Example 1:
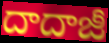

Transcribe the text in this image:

దాదాజీ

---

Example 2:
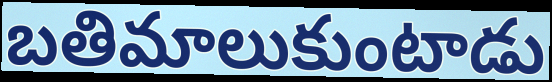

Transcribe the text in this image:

బతిమాలుకుంటాడు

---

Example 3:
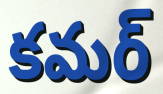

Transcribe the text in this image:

కమర్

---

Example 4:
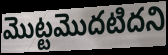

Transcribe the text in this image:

మొట్టమొదటిదని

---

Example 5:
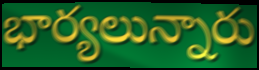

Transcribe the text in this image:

భార్యలున్నారు